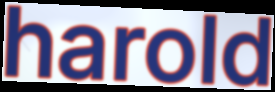
harold